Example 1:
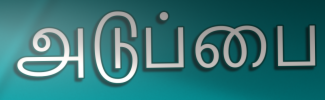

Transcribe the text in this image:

அடுப்பை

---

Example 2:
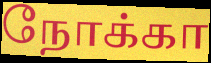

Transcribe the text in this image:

நோக்கா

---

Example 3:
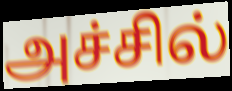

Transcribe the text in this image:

அச்சில்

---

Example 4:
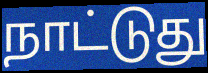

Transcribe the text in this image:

நாட்டுது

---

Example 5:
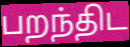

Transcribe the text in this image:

பறந்திட